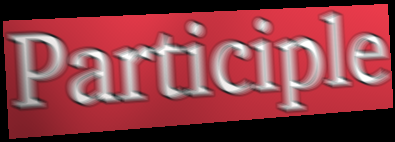
Participle